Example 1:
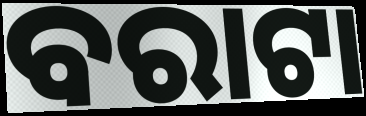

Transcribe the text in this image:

ବରାଟା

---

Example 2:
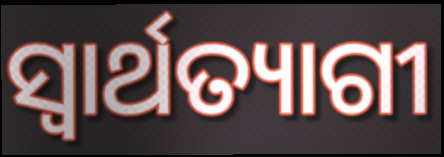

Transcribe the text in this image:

ସ୍ୱାର୍ଥତ୍ୟାଗୀ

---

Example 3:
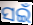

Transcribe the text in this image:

ସଇଁ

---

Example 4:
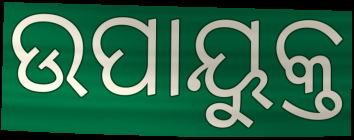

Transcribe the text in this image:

ଉପାୟୁକ୍ତ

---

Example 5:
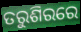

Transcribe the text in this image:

ତରୁଶିରରେ